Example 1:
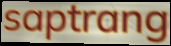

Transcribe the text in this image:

saptrang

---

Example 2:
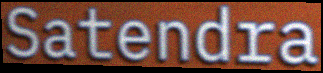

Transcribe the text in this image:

Satendra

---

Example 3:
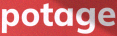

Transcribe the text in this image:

potage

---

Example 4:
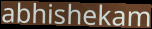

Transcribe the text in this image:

abhishekam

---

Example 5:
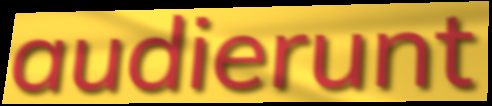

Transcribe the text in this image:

audierunt